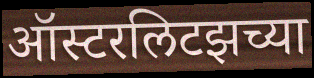
ऑस्टरलिटझच्या